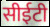
सीईटी